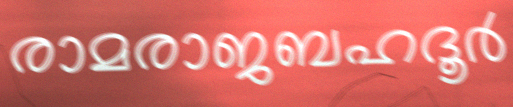
രാമരാജബഹദൂർ